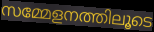
സമ്മേളനത്തിലൂടെ